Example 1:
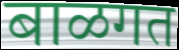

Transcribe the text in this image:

बाळगत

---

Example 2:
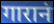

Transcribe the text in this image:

गारानं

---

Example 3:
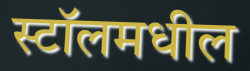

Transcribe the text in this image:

स्टॉलमधील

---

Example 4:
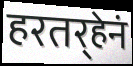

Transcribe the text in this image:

हरतर्‍हेनं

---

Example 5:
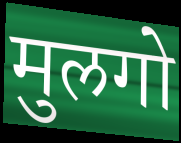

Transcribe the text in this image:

मुलगो